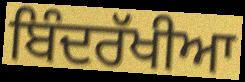
ਬਿੰਦਰੱਖੀਆ